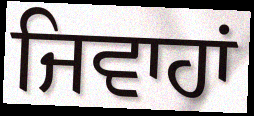
ਜਿਵਾਹਾਂ